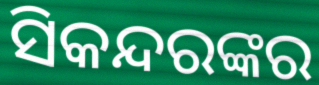
ସିକନ୍ଦରଙ୍କର